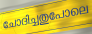
ചോദിച്ചതുപോലെ